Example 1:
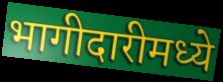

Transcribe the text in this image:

भागीदारीमध्ये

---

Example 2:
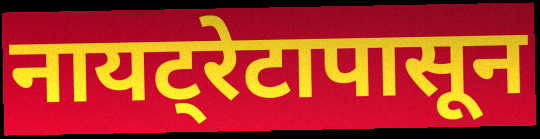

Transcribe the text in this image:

नायट्रेटापासून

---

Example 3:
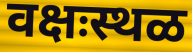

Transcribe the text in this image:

वक्षःस्थळ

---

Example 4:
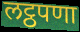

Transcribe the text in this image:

लट्ठपणा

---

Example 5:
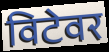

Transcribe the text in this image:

विटेवर